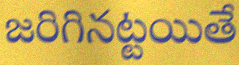
జరిగినట్టయితే